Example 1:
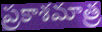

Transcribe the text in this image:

ప్రకాశమాత్ర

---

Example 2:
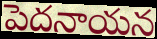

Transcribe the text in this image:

పెదనాయన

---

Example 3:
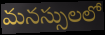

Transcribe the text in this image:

మనస్సులలో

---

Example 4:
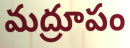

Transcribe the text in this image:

మద్రూపం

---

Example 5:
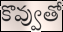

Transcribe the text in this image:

కొవ్వుతో